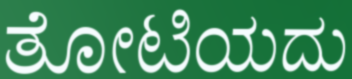
ತೋಟಿಯದು